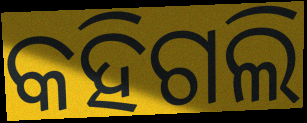
କହିଗଲି